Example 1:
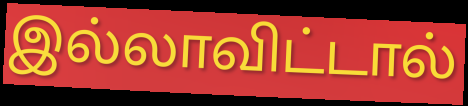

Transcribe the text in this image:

இல்லாவிட்டால்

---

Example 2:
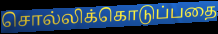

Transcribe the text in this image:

சொல்லிக்கொடுப்பதை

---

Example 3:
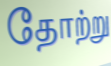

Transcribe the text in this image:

தோற்று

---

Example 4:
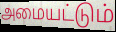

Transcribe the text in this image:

அமையட்டும்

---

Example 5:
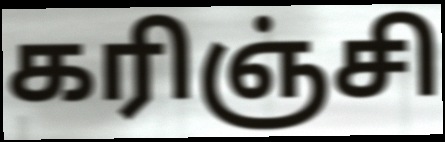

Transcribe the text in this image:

கரிஞ்சி